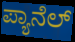
ಪ್ಯಾನೆಲ್